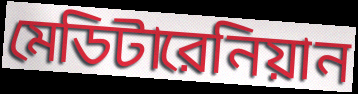
মেডিটারেনিয়ান